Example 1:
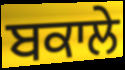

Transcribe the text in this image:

ਬਕਾਲੇ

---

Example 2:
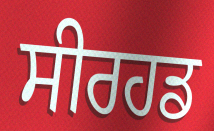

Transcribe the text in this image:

ਸੀਰਹਡ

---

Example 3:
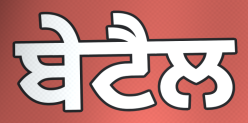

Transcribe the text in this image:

ਬੇਟੈਲ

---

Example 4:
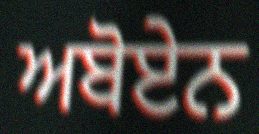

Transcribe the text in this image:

ਅਬੋਏਨ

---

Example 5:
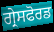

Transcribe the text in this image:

ਗ੍ਰੇਸਫੋਰਡ